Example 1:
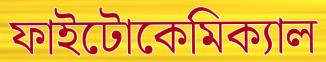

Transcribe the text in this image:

ফাইটোকেমিক্যাল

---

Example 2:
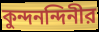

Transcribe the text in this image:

কুন্দনন্দিনীর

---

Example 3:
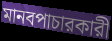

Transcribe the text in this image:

মানবপাচারকারী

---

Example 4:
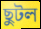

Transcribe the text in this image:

ছুটল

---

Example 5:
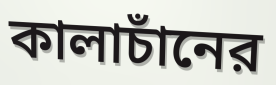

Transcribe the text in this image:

কালাচাঁনের